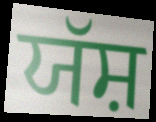
ਯੱਸ਼